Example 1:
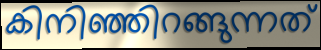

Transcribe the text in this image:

കിനിഞ്ഞിറങ്ങുന്നത്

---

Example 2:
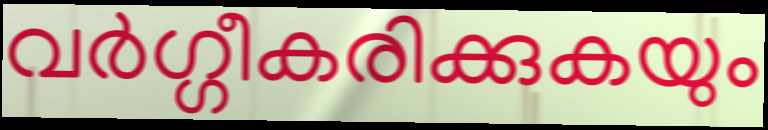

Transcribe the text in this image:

വർഗ്ഗീകരിക്കുകയും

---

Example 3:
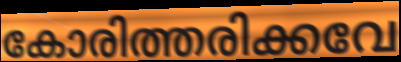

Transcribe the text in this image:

കോരിത്തരിക്കവേ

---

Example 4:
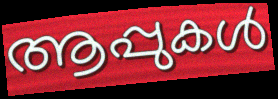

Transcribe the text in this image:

ആപ്പുകൾ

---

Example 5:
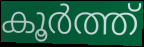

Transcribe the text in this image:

കൂർത്ത്